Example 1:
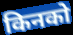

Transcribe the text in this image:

किनको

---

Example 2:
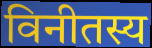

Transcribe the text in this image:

विनीतस्य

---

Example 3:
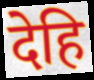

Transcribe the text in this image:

देहि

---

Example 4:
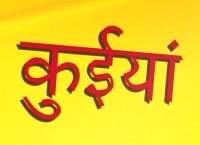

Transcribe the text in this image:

कुईयां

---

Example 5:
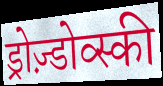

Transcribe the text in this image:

ड्रोज़्डोव्स्की